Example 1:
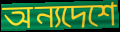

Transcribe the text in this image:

অন্যদেশে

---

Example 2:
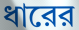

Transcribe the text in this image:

ধারের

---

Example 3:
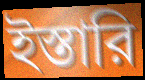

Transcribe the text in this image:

ইস্তারি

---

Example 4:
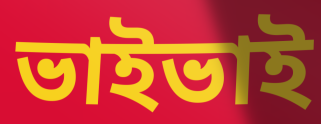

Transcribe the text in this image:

ভাইভাই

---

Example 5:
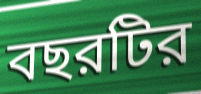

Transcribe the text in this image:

বছরটির